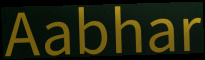
Aabhar